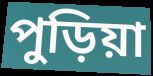
পুড়িয়া